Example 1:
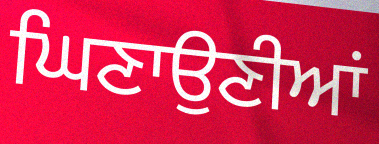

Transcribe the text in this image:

ਘਿਣਾਉਣੀਆਂ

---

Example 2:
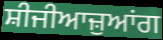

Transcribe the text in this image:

ਸ਼ੀਜੀਆਜ਼ੁਆਂਗ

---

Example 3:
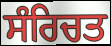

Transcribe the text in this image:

ਸੰਰਿਚਤ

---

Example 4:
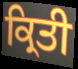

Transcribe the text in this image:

ਕ੍ਰਿਤੀ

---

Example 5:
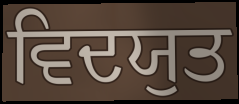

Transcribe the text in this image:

ਵਿਦਯੁਤ